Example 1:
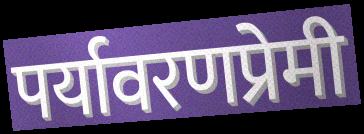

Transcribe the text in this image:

पर्यावरणप्रेमी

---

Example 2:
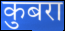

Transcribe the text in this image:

कुबरा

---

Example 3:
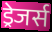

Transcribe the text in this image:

ड्रेजर्स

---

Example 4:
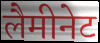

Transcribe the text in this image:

लैमीनेट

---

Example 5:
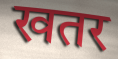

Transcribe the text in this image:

खतर